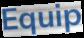
Equip